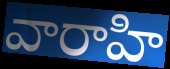
వారాహి